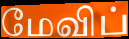
மேவிப்